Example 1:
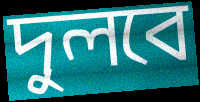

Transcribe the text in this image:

দুলবে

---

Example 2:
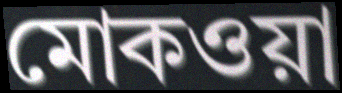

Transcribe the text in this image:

মোকওয়া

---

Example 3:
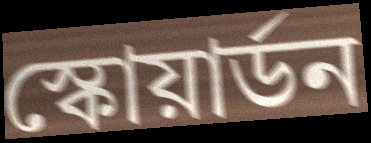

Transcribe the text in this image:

স্কোয়ার্ডন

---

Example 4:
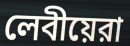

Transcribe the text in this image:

লেবীয়েরা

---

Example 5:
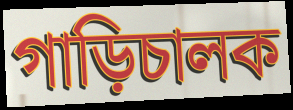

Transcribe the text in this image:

গাড়িচালক